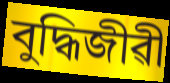
বুদ্ধিজীৱী